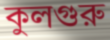
কুলগুরু